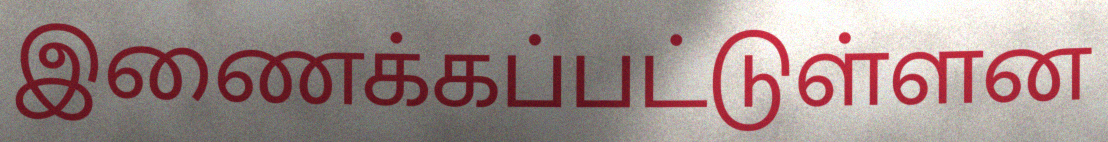
இணைக்கப்பட்டுள்ளன